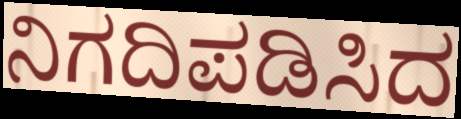
ನಿಗದಿಪಡಿಸಿದ